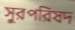
সুরপরিষদ